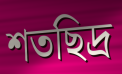
শতছিদ্র